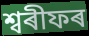
শ্বৰীফৰ